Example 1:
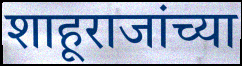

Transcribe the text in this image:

शाहूराजांच्या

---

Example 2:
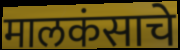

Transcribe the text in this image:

मालकंसाचे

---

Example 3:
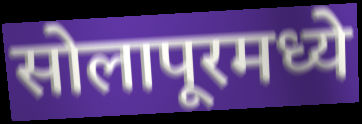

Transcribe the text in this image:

सोलापूरमध्ये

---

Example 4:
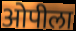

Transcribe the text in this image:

ओपीला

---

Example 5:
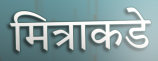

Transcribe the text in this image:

मित्राकडे